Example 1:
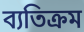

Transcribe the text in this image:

ব্যতিক্ৰম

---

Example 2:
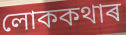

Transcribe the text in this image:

লোককথাৰ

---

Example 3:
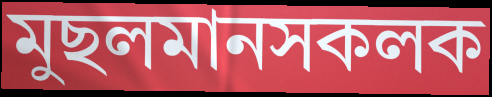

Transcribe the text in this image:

মুছলমানসকলক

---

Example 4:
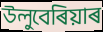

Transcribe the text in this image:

উলুবেৰিয়াৰ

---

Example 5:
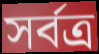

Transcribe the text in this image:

সৰ্বত্ৰ